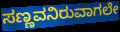
ಸಣ್ಣವನಿರುವಾಗಲೇ